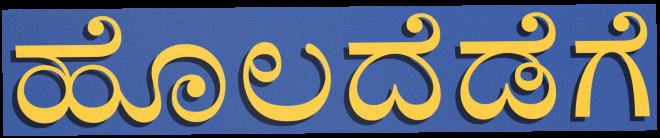
ಹೊಲದೆಡೆಗೆ